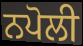
ਨਪੋਲੀ